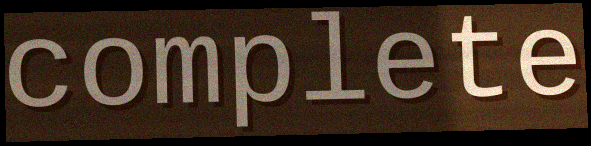
complete